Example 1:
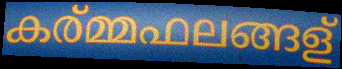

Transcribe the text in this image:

കര്മ്മഫലങ്ങള്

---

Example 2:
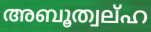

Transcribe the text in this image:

അബൂത്വല്ഹ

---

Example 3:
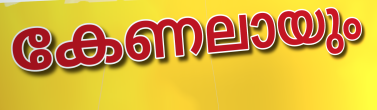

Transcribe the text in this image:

കേണലായും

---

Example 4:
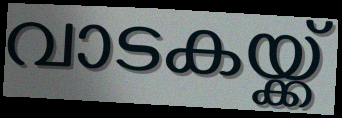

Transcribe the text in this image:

വാടകയ്ക്ക്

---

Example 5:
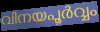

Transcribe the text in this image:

വിനയപൂർവ്വം